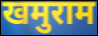
खमुराम